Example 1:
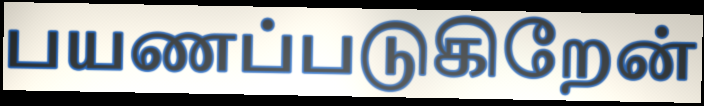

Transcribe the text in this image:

பயணப்படுகிறேன்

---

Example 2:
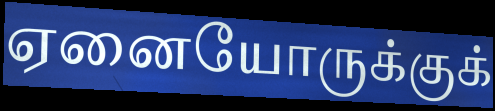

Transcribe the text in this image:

ஏனையோருக்குக்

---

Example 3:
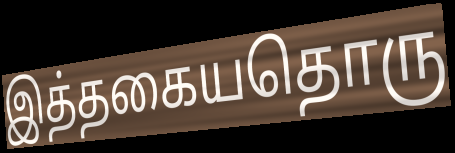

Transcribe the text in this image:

இத்தகையதொரு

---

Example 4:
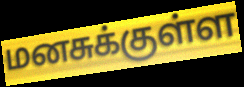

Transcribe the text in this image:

மனசுக்குள்ள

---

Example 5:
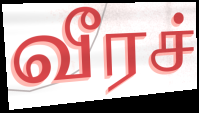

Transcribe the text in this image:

வீரச்